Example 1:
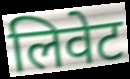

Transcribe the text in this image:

लिवेट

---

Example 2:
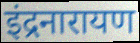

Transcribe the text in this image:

इंद्रनारायण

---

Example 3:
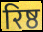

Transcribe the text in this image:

रिष्ठ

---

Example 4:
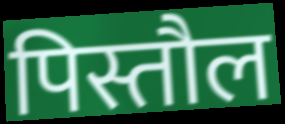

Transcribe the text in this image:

पिस्तौल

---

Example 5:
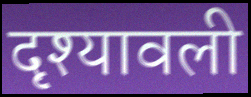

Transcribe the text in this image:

दृश्यावली